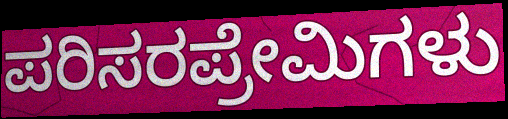
ಪರಿಸರಪ್ರೇಮಿಗಳು